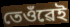
তেওঁৱেই